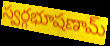
స్వర్గభూషణామ్